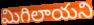
మిగిలాయని